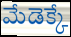
మేడెక్కే